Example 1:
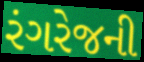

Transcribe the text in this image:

રંગરેજની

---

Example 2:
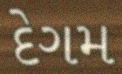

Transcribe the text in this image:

દેગમ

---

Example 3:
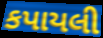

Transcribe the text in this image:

કપાયલી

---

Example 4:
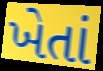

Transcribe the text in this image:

ખેતાં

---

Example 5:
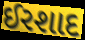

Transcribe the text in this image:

ઈરશાદ